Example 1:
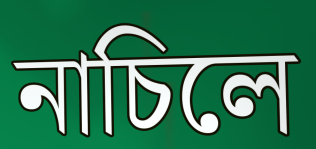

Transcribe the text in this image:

নাচিলে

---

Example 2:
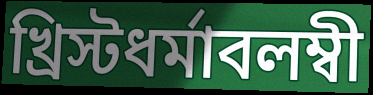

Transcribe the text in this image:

খ্রিস্টধর্মাবলম্বী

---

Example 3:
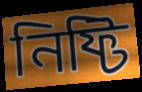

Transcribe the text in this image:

নিফ্টি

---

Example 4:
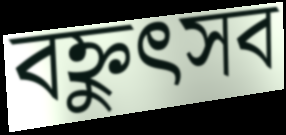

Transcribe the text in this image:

বহ্নুৎসব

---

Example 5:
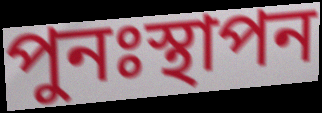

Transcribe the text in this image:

পুনঃস্থাপন